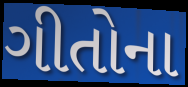
ગીતોના